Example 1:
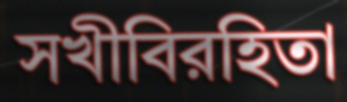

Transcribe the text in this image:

সখীবিরহিতা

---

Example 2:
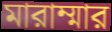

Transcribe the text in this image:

মারাম্মার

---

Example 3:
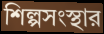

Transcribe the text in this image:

শিল্পসংস্থার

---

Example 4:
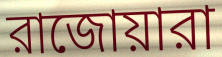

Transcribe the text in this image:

রাজোয়ারা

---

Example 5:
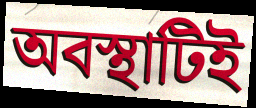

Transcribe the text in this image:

অবস্থাটিই